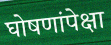
घोषणांपेक्षा